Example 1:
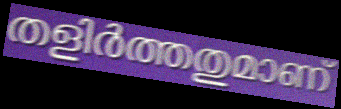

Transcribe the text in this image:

തളിർത്തതുമാണ്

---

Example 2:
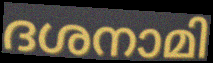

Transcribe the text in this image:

ദശനാമി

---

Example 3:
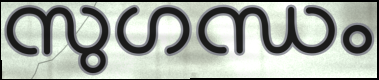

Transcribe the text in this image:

സുഗന്ധം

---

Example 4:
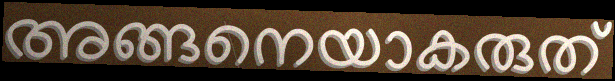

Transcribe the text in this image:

അങ്ങനെയാകരുത്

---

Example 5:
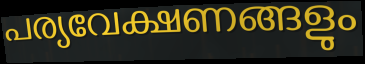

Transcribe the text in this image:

പര്യവേക്ഷണങ്ങളും